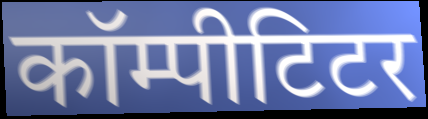
कॉम्पीटिटर